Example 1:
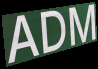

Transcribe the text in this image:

ADM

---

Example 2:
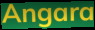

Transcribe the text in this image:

Angara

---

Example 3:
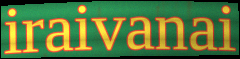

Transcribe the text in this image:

iraivanai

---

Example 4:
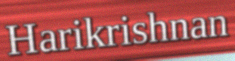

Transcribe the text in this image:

Harikrishnan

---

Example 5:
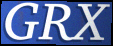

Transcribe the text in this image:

GRX